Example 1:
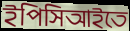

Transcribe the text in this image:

ইপিসিআইতে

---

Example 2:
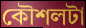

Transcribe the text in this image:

কৌশলটা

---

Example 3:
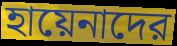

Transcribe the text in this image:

হায়েনাদের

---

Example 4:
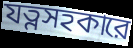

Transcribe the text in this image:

যত্নসহকারে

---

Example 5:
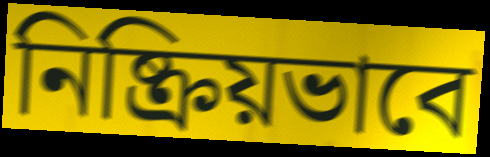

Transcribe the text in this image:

নিষ্ক্রিয়ভাবে